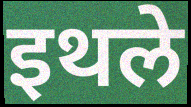
इथले